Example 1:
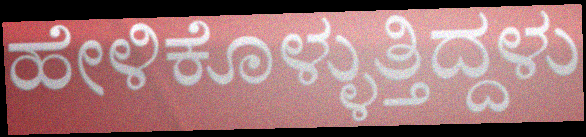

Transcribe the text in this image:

ಹೇಳಿಕೊಳ್ಳುತ್ತಿದ್ದಳು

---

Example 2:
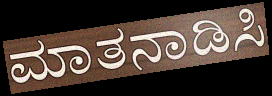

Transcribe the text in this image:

ಮಾತನಾಡಿಸಿ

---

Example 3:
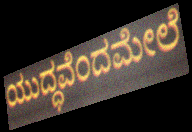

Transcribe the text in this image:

ಯುದ್ಧವೆಂದಮೇಲೆ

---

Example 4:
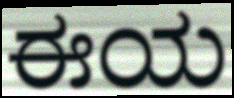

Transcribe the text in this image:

ಈಯ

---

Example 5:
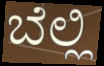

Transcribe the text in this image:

ಬೆಲ್ಲಿ